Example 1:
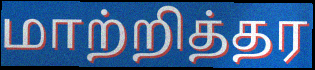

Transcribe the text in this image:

மாற்றித்தர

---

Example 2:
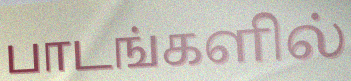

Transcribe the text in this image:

பாடங்களில்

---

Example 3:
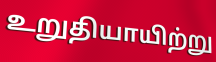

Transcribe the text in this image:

உறுதியாயிற்று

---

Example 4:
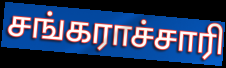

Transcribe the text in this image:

சங்கராச்சாரி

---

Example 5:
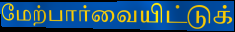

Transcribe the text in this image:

மேற்பார்வையிட்டுக்